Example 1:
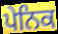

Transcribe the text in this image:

ਪੇਨਿਕ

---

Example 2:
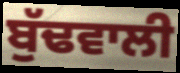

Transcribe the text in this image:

ਬੁੱਢਵਾਲੀ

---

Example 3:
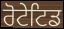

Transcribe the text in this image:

ਰੋਟੇਟਿਡ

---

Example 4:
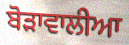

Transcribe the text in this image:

ਬੋੜਾਵਾਲੀਆ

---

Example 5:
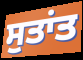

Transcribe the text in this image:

ਸੁਤਾਂਤ